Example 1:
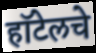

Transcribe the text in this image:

हॉटेलचे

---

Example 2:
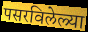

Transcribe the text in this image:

पसरविलेल्या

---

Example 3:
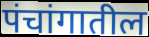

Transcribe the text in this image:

पंचांगातील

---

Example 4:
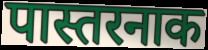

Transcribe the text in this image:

पास्तरनाक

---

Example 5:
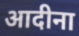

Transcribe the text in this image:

आदीना